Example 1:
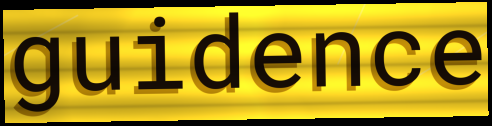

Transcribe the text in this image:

guidence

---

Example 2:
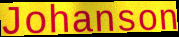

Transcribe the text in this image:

Johanson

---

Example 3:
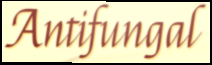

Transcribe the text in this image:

Antifungal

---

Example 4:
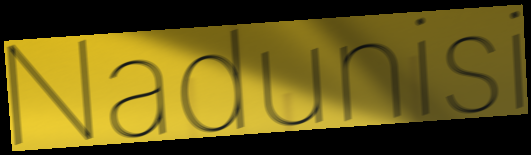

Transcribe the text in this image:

Nadunisi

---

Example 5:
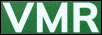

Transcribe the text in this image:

VMR